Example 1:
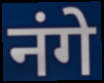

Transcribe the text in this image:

नंगे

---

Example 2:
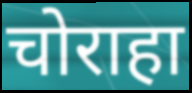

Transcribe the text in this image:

चोराहा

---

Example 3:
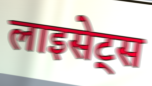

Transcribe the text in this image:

लाइसेट्स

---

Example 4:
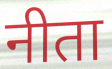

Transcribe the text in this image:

नीता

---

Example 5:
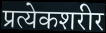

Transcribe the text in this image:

प्रत्येकशरीर